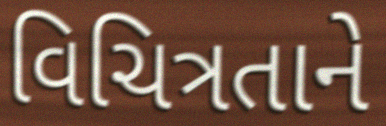
વિચિત્રતાને